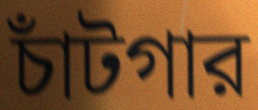
চাঁটগার